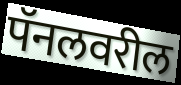
पॅनलवरील